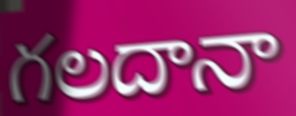
గలదానా